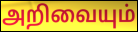
அறிவையும்